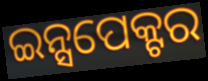
ଇନ୍ସପେକ୍ଟର